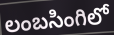
లంబసింగిలో